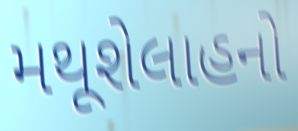
મથૂશેલાહનો